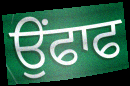
ਉੰਫਾਫ